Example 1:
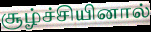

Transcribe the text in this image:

சூழ்ச்சியினால்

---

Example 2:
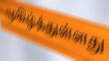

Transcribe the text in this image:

முகிழ்த்துள்ளது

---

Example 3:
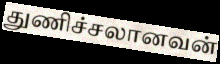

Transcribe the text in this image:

துணிச்சலானவன்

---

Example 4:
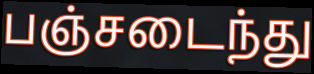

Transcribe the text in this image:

பஞ்சடைந்து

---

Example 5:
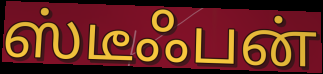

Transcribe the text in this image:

ஸ்டீஃபன்